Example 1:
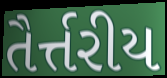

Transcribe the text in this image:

તૈર્ત્તરીય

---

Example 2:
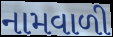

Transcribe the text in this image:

નામવાળી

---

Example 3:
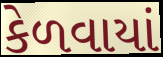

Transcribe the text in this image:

કેળવાયાં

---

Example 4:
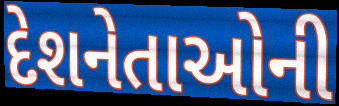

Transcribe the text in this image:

દેશનેતાઓની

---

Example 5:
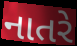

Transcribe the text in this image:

નાતરે